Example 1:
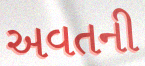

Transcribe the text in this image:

અવતની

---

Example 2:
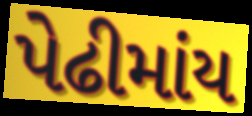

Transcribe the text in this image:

પેઢીમાંય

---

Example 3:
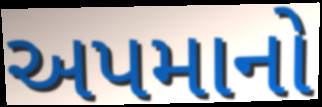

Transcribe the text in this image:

અપમાનો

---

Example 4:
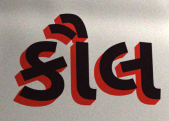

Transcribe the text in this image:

કૌલ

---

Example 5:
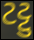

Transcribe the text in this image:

ટટ્ટુ